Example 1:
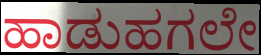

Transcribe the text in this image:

ಹಾಡುಹಗಲೇ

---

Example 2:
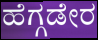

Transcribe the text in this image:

ಹೆಗ್ಗಡೇರ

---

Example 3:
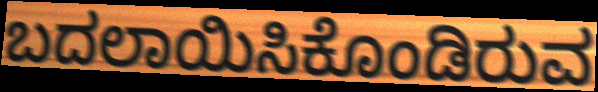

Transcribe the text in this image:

ಬದಲಾಯಿಸಿಕೊಂಡಿರುವ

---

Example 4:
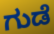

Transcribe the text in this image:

ಗುಡೆ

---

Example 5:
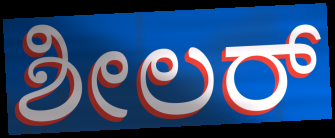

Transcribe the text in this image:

ಶೀಲರ್